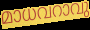
മാധവറാവു